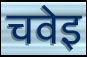
चवेइ